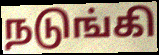
நடுங்கி